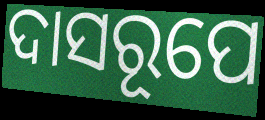
ଦାସରୂପେ